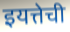
इयत्तेची